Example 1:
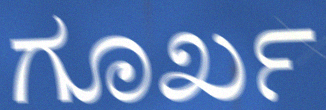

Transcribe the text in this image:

ಗೂರ್ಖ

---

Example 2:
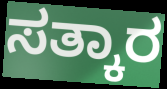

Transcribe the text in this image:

ಸತ್ಕಾರ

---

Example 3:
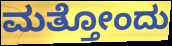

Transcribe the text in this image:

ಮತ್ತೋಂದು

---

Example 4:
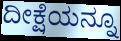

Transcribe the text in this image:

ದೀಕ್ಷೆಯನ್ನೂ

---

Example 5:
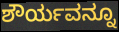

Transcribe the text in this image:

ಶೌರ್ಯವನ್ನೂ